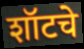
शॉटचे